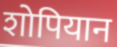
शोपियान